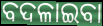
ବଦଳାଇବା